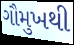
ગૌમુખથી